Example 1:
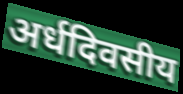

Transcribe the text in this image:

अर्धदिवसीय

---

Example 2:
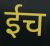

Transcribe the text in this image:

ईच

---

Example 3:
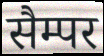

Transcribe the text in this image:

सैम्पर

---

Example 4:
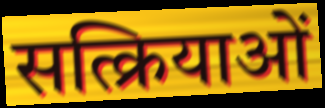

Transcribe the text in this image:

सत्क्रियाओं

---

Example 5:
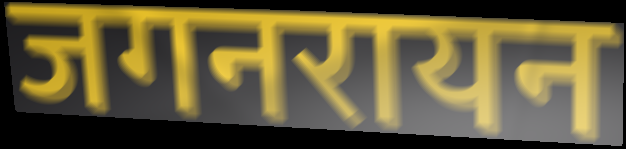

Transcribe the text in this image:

जगनरायन